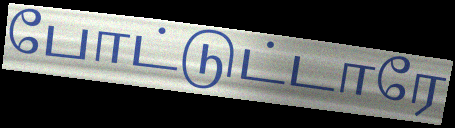
போட்டுட்டாரே